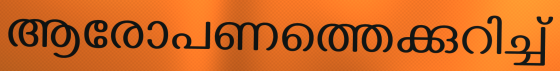
ആരോപണത്തെക്കുറിച്ച്